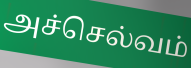
அச்செல்வம்